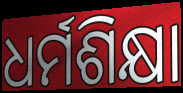
ଧର୍ମଶିକ୍ଷା